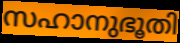
സഹാനുഭൂതി